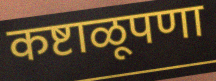
कष्टाळूपणा